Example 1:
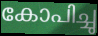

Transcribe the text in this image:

കോപിച്ചു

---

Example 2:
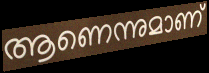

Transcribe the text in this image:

ആണെന്നുമാണ്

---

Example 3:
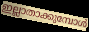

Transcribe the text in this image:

ഇല്ലാതാക്കുമ്പോൾ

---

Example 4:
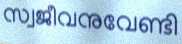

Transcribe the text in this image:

സ്വജീവനുവേണ്ടി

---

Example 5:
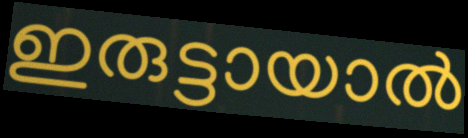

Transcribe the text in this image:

ഇരുട്ടായാൽ